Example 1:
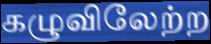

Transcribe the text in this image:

கழுவிலேற்ற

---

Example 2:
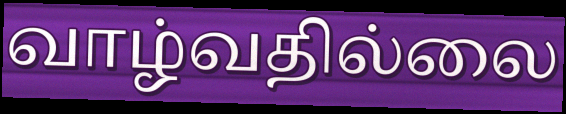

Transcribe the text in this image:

வாழ்வதில்லை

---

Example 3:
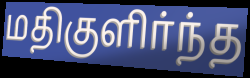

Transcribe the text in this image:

மதிகுளிர்ந்த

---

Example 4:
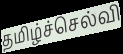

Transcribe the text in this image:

தமிழ்ச்செல்வி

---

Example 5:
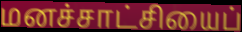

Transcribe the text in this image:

மனச்சாட்சியைப்